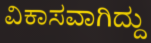
ವಿಕಾಸವಾಗಿದ್ದು